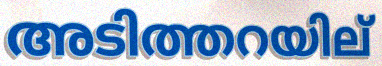
അടിത്തറയില്